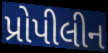
પ્રોપીલીન